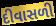
દીવાસળી